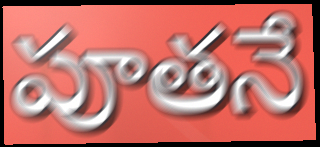
పూతనే